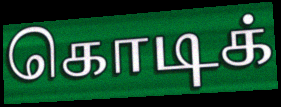
கொடிக்